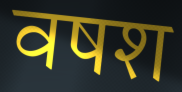
वषश